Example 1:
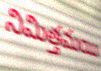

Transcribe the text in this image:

నిమిత్తమయి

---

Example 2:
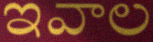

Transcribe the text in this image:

ఇవాల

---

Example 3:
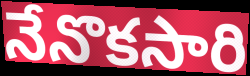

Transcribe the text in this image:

నేనొకసారి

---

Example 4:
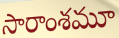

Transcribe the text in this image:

సారాంశమూ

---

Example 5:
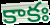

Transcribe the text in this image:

కాకః